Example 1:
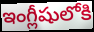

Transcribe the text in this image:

ఇంగ్లీషులోకి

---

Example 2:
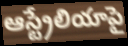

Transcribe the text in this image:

ఆస్ట్రేలియాపై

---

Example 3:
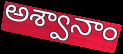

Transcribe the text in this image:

అశ్వానాం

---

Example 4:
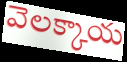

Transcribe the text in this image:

వెలక్కాయ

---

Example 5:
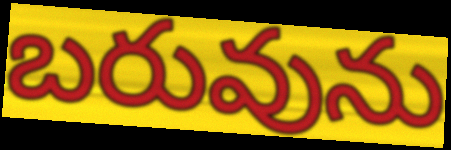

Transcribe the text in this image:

బరువును